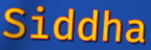
Siddha